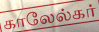
காலேல்கர்